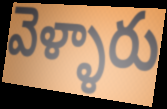
వెళ్ళారు